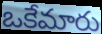
ఒకేమారు